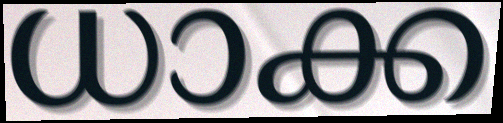
ധാക്ക